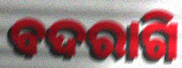
ବଦରାଗି